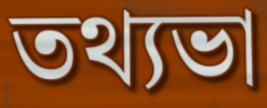
তথ্যভা